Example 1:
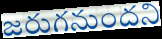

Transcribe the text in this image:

జరుగనుందని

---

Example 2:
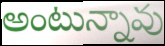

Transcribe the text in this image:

అంటున్నావు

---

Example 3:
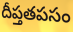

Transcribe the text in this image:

దీప్తతపసం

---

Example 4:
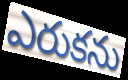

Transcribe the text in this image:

ఎరుకను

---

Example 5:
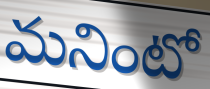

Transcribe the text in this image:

మనింటో